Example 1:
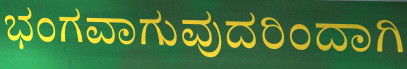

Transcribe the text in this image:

ಭಂಗವಾಗುವುದರಿಂದಾಗಿ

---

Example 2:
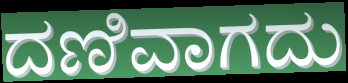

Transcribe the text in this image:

ದಣಿವಾಗದು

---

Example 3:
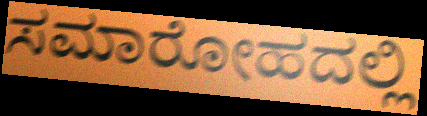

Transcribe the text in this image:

ಸಮಾರೋಹದಲ್ಲಿ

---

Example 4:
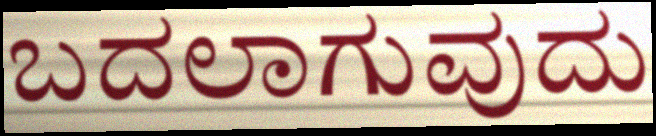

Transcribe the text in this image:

ಬದಲಾಗುವುದು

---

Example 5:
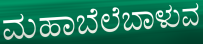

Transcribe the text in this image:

ಮಹಾಬೆಲೆಬಾಳುವ